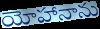
యోహానాను